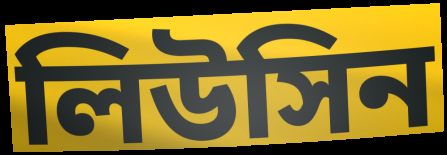
লিউসিন